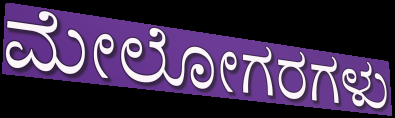
ಮೇಲೋಗರಗಳು